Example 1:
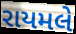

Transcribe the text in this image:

રાયમલે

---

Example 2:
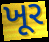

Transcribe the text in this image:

ખૂર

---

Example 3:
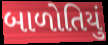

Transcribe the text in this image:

બાળોતિયું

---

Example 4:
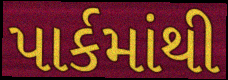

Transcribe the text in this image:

પાર્કમાંથી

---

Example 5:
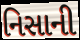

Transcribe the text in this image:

નિસાની